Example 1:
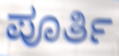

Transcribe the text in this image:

ಪೂರ್ತಿ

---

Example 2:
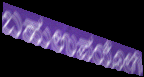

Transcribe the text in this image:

ಬಹುಉಪಯೋಗಿ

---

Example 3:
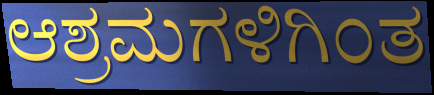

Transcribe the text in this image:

ಆಶ್ರಮಗಳಿಗಿಂತ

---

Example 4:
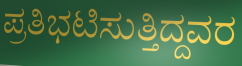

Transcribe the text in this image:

ಪ್ರತಿಭಟಿಸುತ್ತಿದ್ದವರ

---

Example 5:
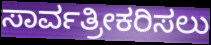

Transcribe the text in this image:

ಸಾರ್ವತ್ರೀಕರಿಸಲು